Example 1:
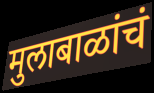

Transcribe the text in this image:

मुलाबाळांचं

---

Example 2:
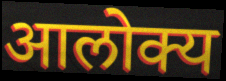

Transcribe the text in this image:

आलोक्य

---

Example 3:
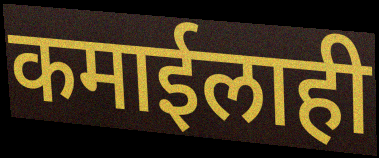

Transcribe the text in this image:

कमाईलाही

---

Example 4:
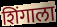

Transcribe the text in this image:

शिंगाला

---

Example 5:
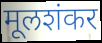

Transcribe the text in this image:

मूलशंकर